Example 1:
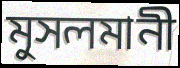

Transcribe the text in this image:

মুসলমানী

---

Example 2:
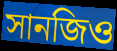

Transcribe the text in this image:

সানজিও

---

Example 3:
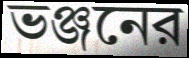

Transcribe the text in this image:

ভঞ্জনের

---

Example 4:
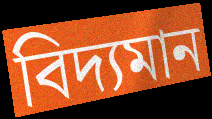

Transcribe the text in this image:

বিদ্যমান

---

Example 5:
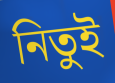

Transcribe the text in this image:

নিতুই